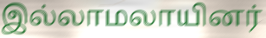
இல்லாமலாயினர்